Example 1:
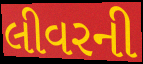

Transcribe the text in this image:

લીવરની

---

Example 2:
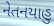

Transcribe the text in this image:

નેતનયાહુ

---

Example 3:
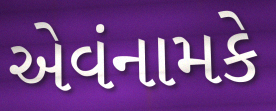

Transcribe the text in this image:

એવંનામકે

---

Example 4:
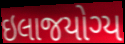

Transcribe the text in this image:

ઇલાજયોગ્ય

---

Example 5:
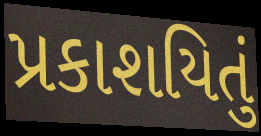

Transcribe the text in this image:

પ્રકાશયિતું